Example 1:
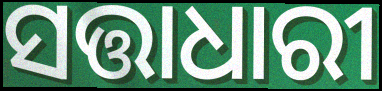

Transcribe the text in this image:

ସତ୍ତାଧାରୀ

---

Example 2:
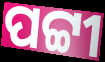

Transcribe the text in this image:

ପଟ୍ଟୀ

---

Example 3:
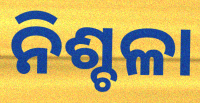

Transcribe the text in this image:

ନିଶ୍ଚଳା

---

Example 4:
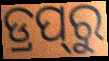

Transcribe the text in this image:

ଡ୍ରପ୍‍ରୁ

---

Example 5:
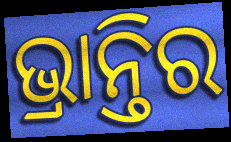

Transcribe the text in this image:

ଭ୍ରାନ୍ତିର